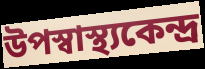
উপস্বাস্থ্যকেন্দ্র